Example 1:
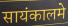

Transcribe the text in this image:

सायंकालमे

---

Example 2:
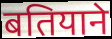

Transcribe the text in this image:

बतियाने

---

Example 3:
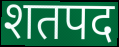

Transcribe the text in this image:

शतपद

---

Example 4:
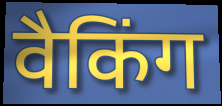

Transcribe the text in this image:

वैकिंग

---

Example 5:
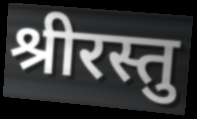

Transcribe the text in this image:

श्रीरस्तु